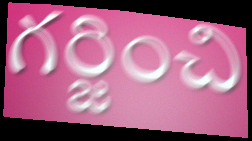
గర్జించి